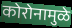
कोरोनामुळे